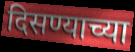
दिसण्याच्या